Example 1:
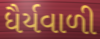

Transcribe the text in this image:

ધૈર્યવાળી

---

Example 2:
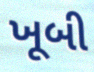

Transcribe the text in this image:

ખૂબી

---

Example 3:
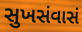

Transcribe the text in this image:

સુખસંવાસં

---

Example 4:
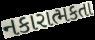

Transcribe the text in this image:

નકારાત્મકતા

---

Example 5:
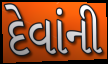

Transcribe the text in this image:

દેવાંની